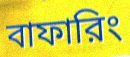
বাফারিং